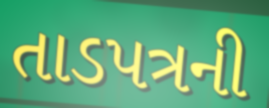
તાડપત્રની